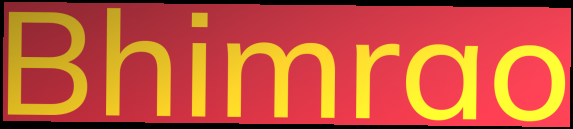
Bhimrao